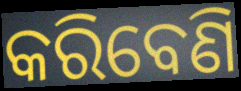
କରିବେଣି